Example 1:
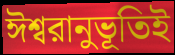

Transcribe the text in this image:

ঈশ্বরানুভূতিই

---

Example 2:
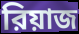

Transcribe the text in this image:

রিয়াজ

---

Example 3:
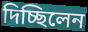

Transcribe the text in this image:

দিচ্ছিলেন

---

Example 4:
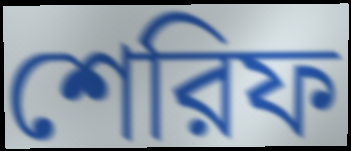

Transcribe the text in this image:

শেরিফ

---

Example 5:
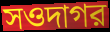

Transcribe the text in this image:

সওদাগর